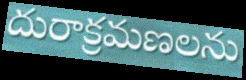
దురాక్రమణలను